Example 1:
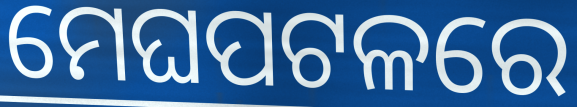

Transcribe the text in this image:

ମେଘପଟଳରେ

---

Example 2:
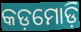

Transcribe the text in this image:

କଡ଼ମୋଡ଼ି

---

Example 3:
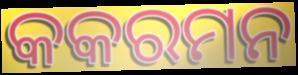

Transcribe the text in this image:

କକରମନ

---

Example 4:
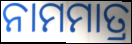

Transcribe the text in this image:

ନାମମାତ୍ର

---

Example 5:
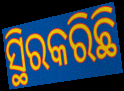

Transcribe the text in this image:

ସ୍ଥିରକରିଛି